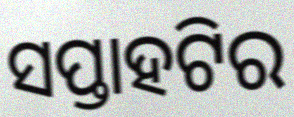
ସପ୍ତାହଟିର